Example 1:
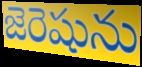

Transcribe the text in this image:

జెరెషును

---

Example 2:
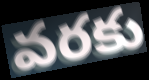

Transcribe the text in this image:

వరకు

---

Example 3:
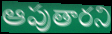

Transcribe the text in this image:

ఆపుతారని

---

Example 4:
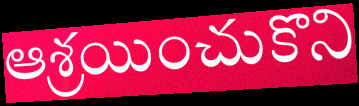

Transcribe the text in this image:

ఆశ్రయించుకొని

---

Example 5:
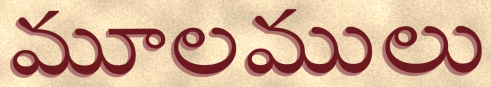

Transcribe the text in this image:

మూలములు